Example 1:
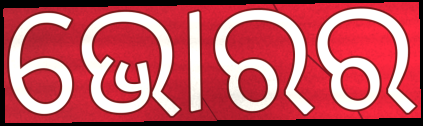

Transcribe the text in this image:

ଭୋରର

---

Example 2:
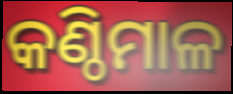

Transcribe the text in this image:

କଣ୍ଠିମାଳ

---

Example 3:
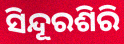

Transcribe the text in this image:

ସିନ୍ଦୂରଶିରି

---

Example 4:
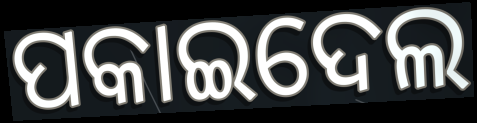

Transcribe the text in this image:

ପକାଇଦେଲ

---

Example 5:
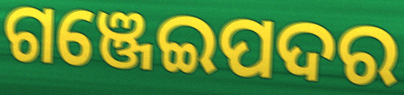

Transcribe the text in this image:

ଗଞ୍ଜେଇପଦର